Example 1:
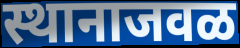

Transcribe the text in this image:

स्थानाजवळ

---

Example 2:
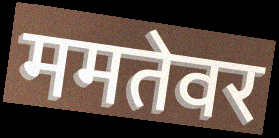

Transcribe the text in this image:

ममतेवर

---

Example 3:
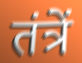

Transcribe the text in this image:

तंत्रें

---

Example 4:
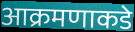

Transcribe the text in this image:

आक्रमणाकडे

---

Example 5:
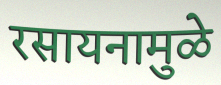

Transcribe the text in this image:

रसायनामुळे